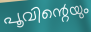
പൂവിന്റെയും